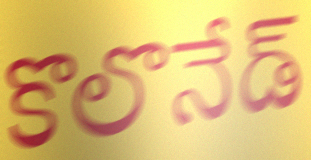
కొలొనేడ్